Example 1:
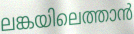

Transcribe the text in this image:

ലങ്കയിലെത്താൻ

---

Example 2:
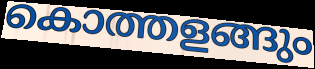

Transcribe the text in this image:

കൊത്തളങ്ങും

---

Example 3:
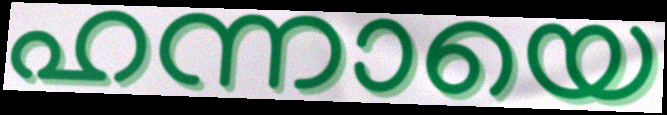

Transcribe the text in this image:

ഹന്നായെ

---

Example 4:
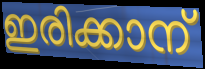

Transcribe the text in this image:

ഇരിക്കാന്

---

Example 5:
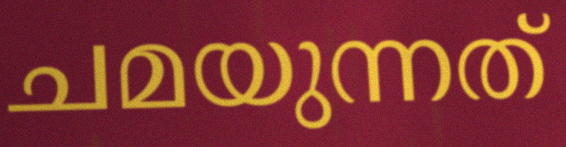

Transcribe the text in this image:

ചമയുന്നത്